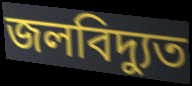
জলবিদ্যুত